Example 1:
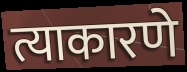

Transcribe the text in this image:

त्याकारणे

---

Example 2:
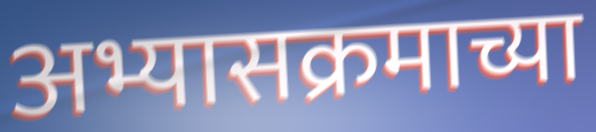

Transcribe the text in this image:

अभ्यासक्रमाच्या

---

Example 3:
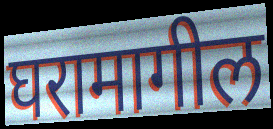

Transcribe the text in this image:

घरामागील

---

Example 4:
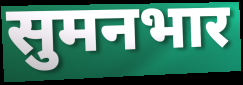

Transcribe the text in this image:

सुमनभार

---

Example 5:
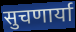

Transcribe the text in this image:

सुचणार्या